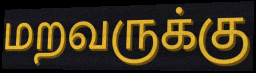
மறவருக்கு